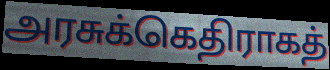
அரசுக்கெதிராகத்